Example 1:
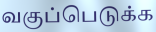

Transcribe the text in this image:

வகுப்பெடுக்க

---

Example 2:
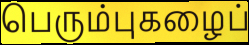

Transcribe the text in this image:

பெரும்புகழைப்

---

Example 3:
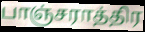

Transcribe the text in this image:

பாஞ்சராத்திர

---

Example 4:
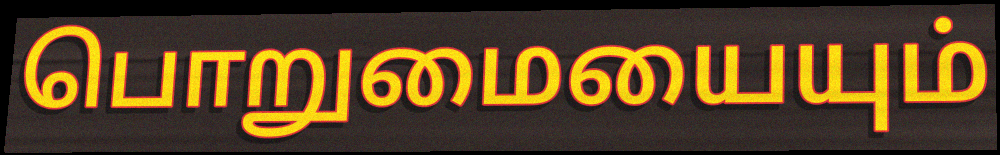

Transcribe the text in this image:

பொறுமையையும்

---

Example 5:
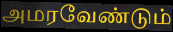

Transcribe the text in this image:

அமரவேண்டும்